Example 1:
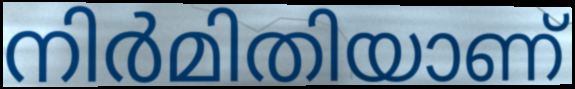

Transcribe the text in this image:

നിർമിതിയാണ്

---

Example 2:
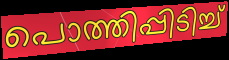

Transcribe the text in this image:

പൊത്തിപ്പിടിച്ച്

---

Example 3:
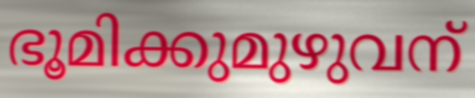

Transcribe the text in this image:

ഭൂമിക്കുമുഴുവന്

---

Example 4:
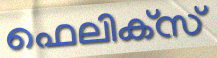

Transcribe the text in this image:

ഫെലിക്‌സ്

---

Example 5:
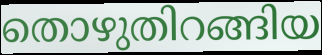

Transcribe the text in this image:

തൊഴുതിറങ്ങിയ